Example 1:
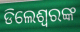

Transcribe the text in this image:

ଡିଲେଶ୍ଵରଙ୍କ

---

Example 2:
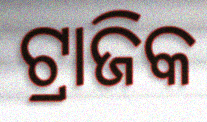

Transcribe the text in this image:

ଟ୍ରାଜିକ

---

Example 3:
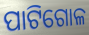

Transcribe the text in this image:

ପାଟିଗୋଳ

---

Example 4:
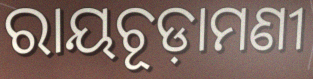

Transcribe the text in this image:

ରାୟଚୂଡ଼ାମଣୀ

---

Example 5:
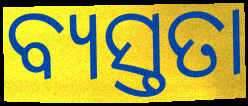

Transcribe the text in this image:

ବ୍ୟସ୍ତତା